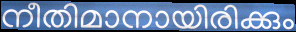
നീതിമാനായിരിക്കും